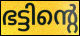
ഭട്ടിന്റെ